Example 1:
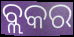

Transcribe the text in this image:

ବ୍ଲକର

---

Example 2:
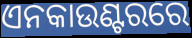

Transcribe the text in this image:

ଏନକାଉଣ୍ଟରରେ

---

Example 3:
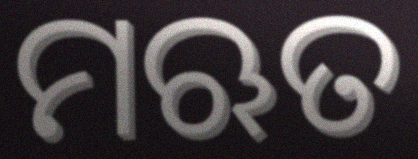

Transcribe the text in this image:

ମଋତ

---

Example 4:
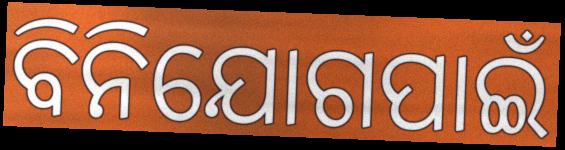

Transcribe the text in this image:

ବିନିଯୋଗପାଇଁ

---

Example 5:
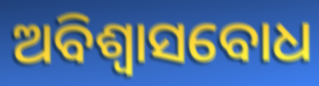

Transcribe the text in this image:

ଅବିଶ୍ୱାସବୋଧ